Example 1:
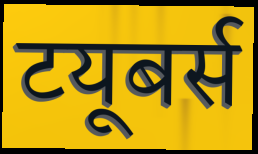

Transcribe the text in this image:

टयूबर्स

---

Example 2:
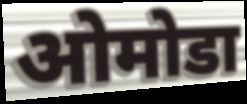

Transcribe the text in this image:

ओमोडा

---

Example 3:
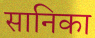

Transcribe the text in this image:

सानिका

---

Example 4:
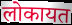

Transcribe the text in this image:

लोकायत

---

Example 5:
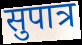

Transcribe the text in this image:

सुपात्र